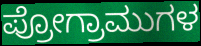
ಪ್ರೋಗ್ರಾಮುಗಳ